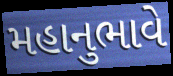
મહાનુભાવે